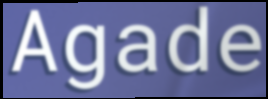
Agade